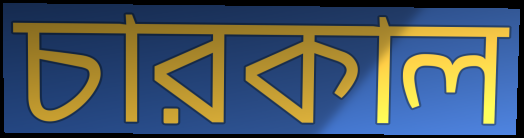
চারকাল